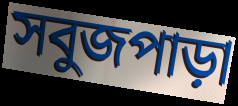
সবুজপাড়া